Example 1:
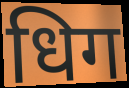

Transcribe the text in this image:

धिग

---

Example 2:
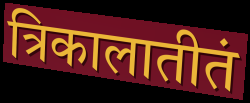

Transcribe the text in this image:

त्रिकालातीतं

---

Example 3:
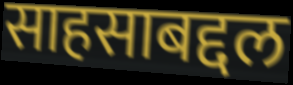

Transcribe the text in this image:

साहसाबद्दल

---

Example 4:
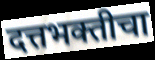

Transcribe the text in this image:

दत्तभक्तीचा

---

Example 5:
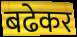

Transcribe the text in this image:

बढेकर